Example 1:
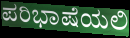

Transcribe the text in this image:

ಪರಿಭಾಷೆಯಲಿ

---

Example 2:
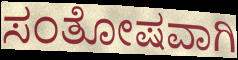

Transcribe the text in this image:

ಸಂತೋಷವಾಗಿ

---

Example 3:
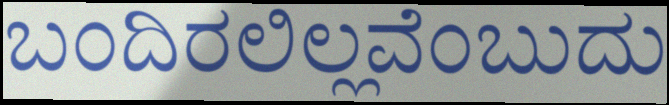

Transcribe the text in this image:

ಬಂದಿರಲಿಲ್ಲವೆಂಬುದು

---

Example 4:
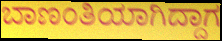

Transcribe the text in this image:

ಬಾಣಂತಿಯಾಗಿದ್ದಾಗ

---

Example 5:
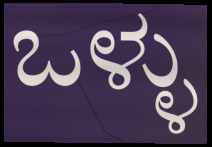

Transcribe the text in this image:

ಒಳ್ಳು